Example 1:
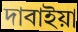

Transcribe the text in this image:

দাবাইয়া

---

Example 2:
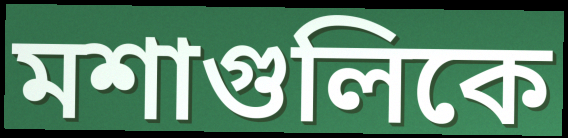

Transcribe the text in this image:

মশাগুলিকে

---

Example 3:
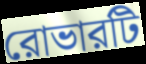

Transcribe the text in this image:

রোভারটি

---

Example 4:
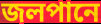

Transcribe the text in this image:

জলপানে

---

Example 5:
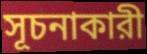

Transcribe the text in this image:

সূচনাকারী